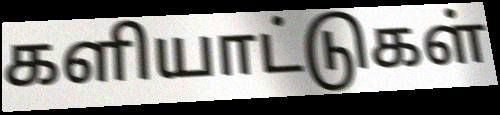
களியாட்டுகள்